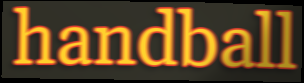
handball